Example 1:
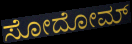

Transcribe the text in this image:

ಸೋದೋಮ್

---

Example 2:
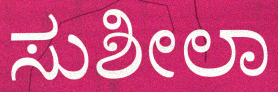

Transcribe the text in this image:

ಸುಶೀಲಾ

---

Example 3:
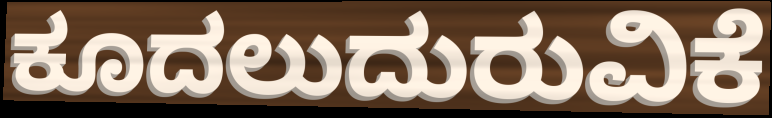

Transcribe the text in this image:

ಕೂದಲುದುರುವಿಕೆ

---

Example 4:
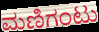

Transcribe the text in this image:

ಮಣಿಗಂಟು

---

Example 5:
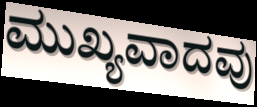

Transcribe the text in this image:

ಮುಖ್ಯವಾದವು